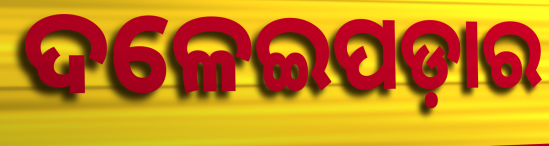
ଦଳେଇପଡ଼ାର